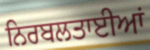
ਨਿਰਬਲਤਾਈਆਂ